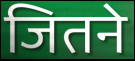
जितने